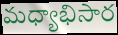
మధ్యాభిసార